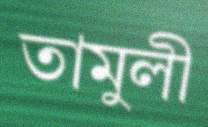
তামুলী